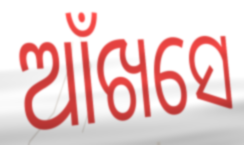
ଆଁଖସେ